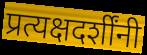
प्रत्यक्षदर्शींनी